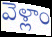
వెళ్లాం